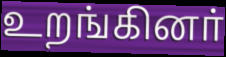
உறங்கினர்